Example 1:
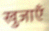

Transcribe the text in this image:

खुजाएँ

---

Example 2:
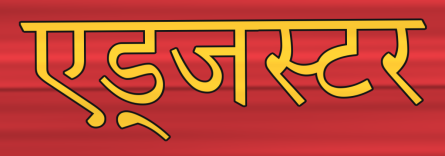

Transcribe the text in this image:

एड्जस्टर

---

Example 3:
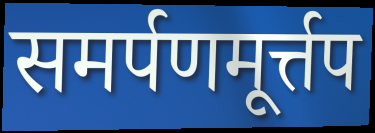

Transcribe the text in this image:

समर्पणमूर्त्तप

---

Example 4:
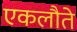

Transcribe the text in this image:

एकलौते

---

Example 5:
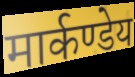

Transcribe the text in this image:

मार्कण्डेय